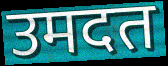
उमदत